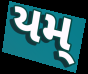
યમ્